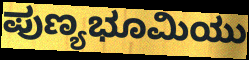
ಪುಣ್ಯಭೂಮಿಯು